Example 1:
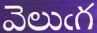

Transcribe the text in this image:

వెలుఁగ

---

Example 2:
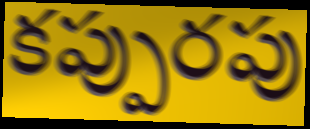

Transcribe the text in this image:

కప్పురపు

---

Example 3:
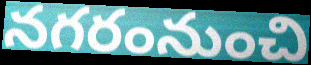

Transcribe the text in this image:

నగరంనుంచి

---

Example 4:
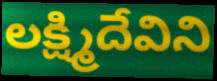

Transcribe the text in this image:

లక్ష్మిదేవిని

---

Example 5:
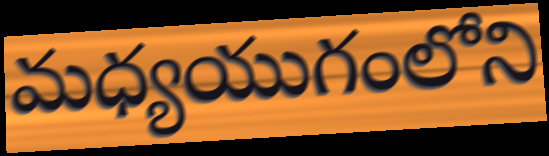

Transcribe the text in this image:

మధ్యయుగంలోని